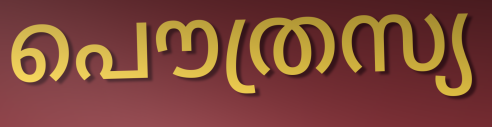
പൌത്രസ്യ